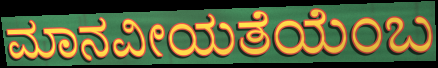
ಮಾನವೀಯತೆಯೆಂಬ